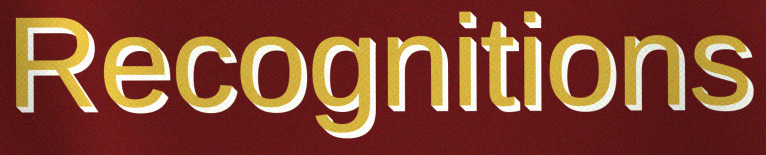
Recognitions